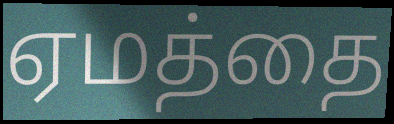
ஏமத்தை